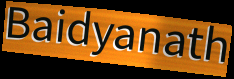
Baidyanath